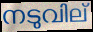
നടുവില്